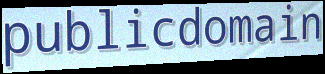
publicdomain